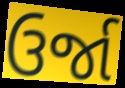
ઉર્જા